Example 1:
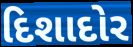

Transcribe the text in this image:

દિશાદોર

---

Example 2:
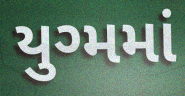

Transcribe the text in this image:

યુગ્મમાં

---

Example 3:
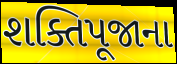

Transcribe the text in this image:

શક્તિપૂજાના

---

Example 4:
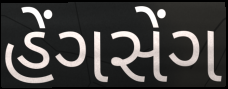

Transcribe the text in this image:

હેંગસેંગ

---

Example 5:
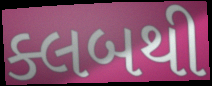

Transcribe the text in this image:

ક્લબથી